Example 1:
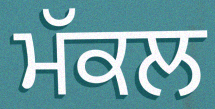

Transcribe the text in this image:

ਮੱਕਲ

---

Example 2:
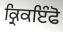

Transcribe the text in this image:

ਕ੍ਰਿਕਇੰਫੋ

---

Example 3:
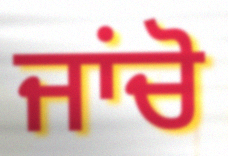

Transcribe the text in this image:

ਜਾਂਚੋ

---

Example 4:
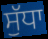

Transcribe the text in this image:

ਸੁੱਧਾ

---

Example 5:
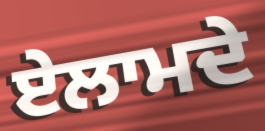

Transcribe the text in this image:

ਏਲਾਮਦੇ